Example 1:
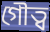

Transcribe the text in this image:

গৌত্ব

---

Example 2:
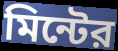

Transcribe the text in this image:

মিন্টের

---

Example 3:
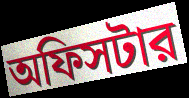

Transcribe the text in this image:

অফিসটার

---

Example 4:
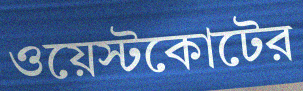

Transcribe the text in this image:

ওয়েস্টকোটের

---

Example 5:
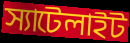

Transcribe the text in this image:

স্যাটেলাইট